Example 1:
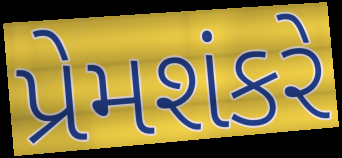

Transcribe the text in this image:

પ્રેમશંકરે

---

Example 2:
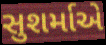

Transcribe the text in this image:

સુશર્માએ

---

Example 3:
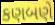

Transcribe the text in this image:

કણબણે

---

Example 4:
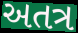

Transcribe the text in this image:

અતત્ર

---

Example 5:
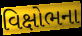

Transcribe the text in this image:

વિક્ષોભના